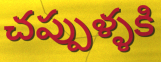
చప్పుళ్ళకి